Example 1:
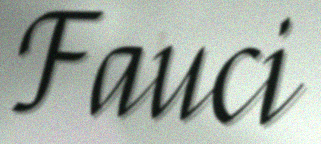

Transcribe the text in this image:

Fauci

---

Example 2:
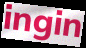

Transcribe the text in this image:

ingin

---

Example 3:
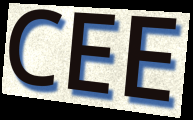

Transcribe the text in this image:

CEE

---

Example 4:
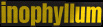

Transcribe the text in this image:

inophyllum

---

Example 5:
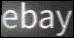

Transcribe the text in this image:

ebay